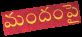
మందంపై